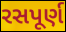
રસપૂર્ણ